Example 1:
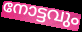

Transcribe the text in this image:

നോട്ടവും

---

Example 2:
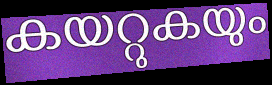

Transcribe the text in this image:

കയറ്റുകയും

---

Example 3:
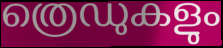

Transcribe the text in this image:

ത്രെഡുകളും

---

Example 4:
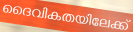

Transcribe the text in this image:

ദൈവികതയിലേക്ക്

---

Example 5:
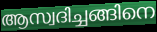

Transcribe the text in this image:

ആസ്വദിച്ചങ്ങിനെ